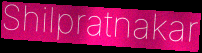
Shilpratnakar